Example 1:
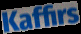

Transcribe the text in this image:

Kaffirs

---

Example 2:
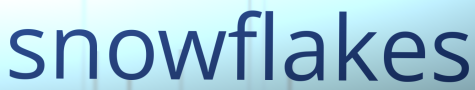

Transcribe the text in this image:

snowflakes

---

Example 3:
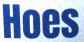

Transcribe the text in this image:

Hoes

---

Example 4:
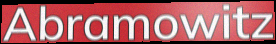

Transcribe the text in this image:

Abramowitz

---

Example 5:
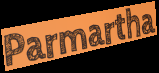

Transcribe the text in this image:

Parmartha